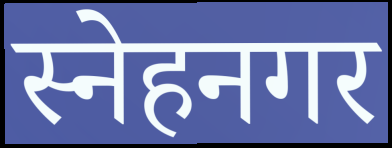
स्नेहनगर